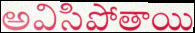
అవిసిపోతాయి